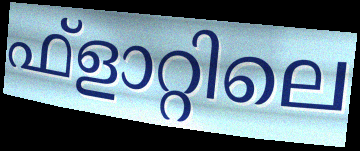
ഫ്ളാറ്റിലെ